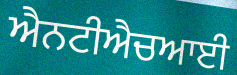
ਐਨਟੀਐਚਆਈ